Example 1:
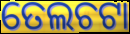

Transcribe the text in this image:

ତେଲଚଟା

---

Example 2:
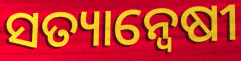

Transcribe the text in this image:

ସତ୍ୟାନ୍ଵେଷୀ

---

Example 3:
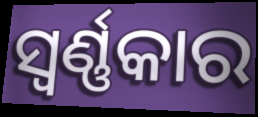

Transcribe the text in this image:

ସ୍ୱର୍ଣ୍ଣକାର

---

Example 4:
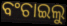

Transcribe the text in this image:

ବଂଚାଇଲୁ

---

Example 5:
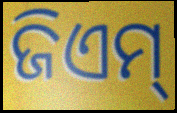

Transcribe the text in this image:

ଜିଏମ୍